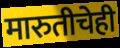
मारुतीचेही